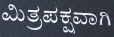
ಮಿತ್ರಪಕ್ಷವಾಗಿ